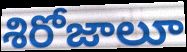
శిరోజాలూ